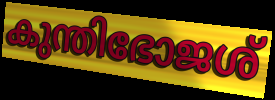
കുന്തിഭോജശ്